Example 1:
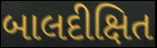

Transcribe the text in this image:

બાલદીક્ષિત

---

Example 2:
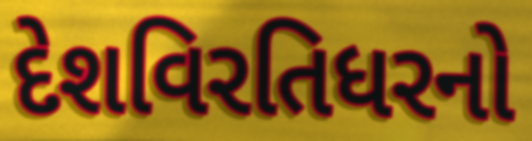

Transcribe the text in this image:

દેશવિરતિધરનો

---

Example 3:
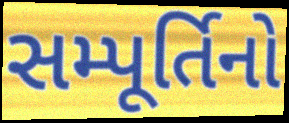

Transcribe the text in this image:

સમ્પૂર્તિનો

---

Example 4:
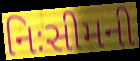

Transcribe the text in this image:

નિઃસીમની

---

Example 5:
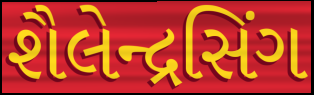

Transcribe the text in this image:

શૈલેન્દ્રસિંગ